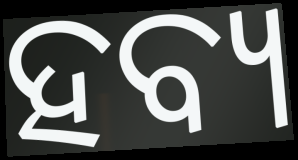
ହବ୍ୟ